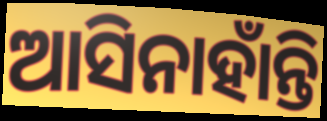
ଆସିନାହାଁନ୍ତି